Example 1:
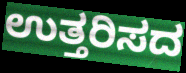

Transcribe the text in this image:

ಉತ್ತರಿಸದ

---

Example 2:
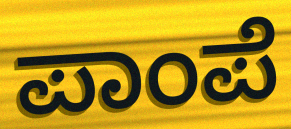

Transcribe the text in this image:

ಪಾಂಪೆ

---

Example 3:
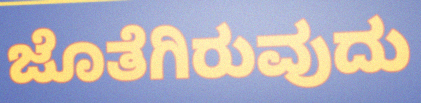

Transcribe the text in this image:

ಜೊತೆಗಿರುವುದು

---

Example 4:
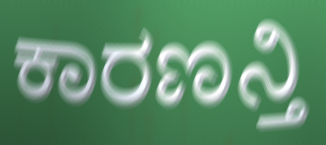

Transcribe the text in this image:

ಕಾರಣನ್ತಿ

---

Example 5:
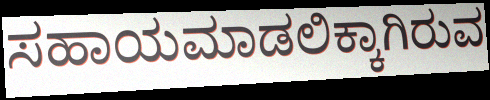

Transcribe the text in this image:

ಸಹಾಯಮಾಡಲಿಕ್ಕಾಗಿರುವ